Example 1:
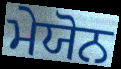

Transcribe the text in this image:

ਮੇਯੋਨ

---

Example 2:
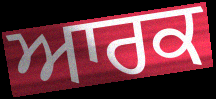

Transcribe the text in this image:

ਆਰਕ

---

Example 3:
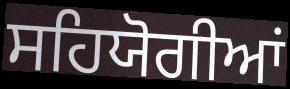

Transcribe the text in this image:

ਸਹਿਯੋਗੀਆਂ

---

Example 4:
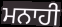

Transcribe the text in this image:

ਮਨਾਹੀ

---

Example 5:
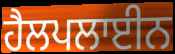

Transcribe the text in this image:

ਹੈਲਪਲਾਈਨ